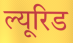
ल्यूरिड